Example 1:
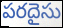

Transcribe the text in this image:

పరదైసు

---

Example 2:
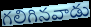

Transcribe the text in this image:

గలిగినవాడు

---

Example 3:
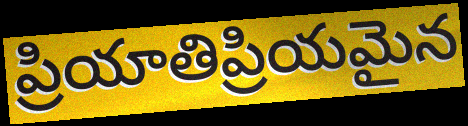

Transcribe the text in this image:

ప్రియాతిప్రియమైన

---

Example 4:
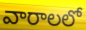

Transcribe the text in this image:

వారాలలో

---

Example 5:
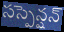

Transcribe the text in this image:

సస్పెన్షన్